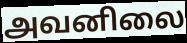
அவனிலை